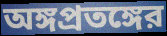
অঙ্গপ্রতঙ্গের